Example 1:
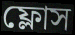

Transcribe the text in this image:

ফ্লোস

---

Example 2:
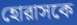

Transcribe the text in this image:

হোরাসকে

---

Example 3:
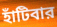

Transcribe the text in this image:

হাঁটিবার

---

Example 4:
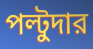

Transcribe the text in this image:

পল্টুদার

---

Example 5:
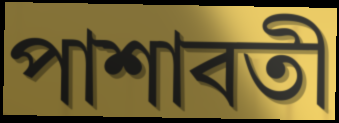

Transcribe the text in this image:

পাশাবতী